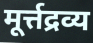
मूर्त्तद्रव्य